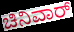
ಚಿನಿವಾರ್